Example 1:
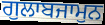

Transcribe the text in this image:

ਗੁਲਾਬਜਾਮੁਨ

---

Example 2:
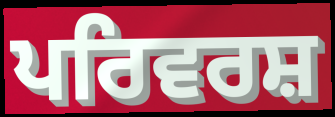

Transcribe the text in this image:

ਪਰਿਵਰਸ਼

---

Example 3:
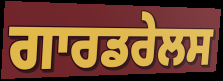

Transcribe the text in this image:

ਗਾਰਡਰੇਲਸ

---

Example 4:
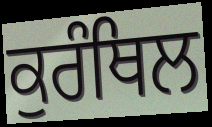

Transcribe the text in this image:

ਕੁਰੰਥਿਲ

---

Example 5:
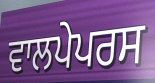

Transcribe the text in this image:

ਵਾਲਪੇਪਰਸ